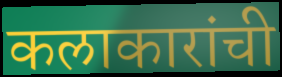
कलाकारांची